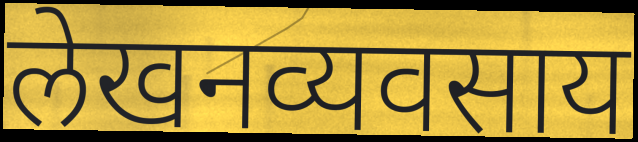
लेखनव्यवसाय